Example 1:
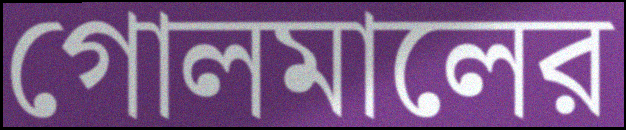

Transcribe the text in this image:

গোলমালের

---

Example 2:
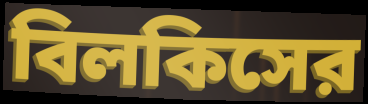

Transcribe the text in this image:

বিলকিসের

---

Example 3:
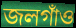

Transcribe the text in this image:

জলগাঁও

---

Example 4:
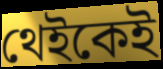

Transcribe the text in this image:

থেইকেই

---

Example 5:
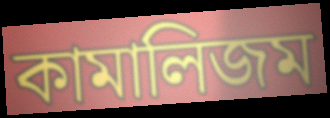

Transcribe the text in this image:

কামালিজম